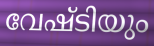
വേഷ്ടിയും